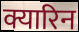
क्यारिन